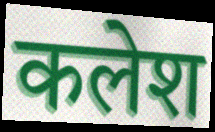
कलेश